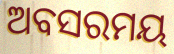
ଅବସରମୟ